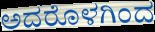
ಅದರೊಳಗಿಂದ